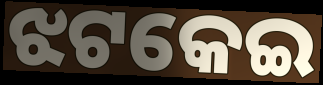
ଝଟକେଇ